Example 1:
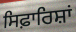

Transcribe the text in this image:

ਸਿਫ਼ਾਰਿਸ਼ਾਂ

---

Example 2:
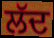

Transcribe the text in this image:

ਲੱਦ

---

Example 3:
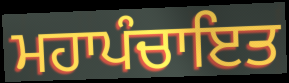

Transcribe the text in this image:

ਮਹਾਪੰਚਾਇਤ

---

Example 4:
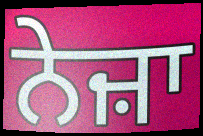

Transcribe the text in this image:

ਨੇਜ਼ਾ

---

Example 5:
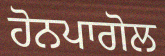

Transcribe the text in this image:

ਹੋਨਪਾਗੋਲ